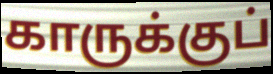
காருக்குப்